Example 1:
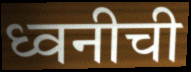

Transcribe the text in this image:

ध्वनीची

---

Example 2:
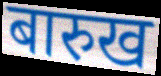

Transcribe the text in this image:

बारुख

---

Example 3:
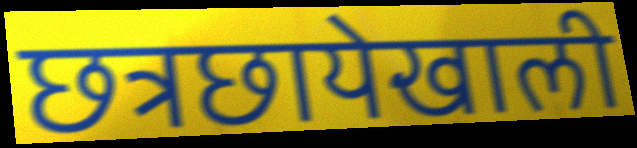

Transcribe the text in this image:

छत्रछायेखाली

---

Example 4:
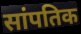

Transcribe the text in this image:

सांपतिक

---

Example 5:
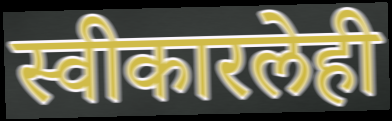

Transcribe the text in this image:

स्वीकारलेही